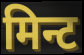
मिन्ट